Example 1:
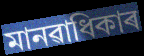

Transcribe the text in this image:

মানৱাধিকাৰ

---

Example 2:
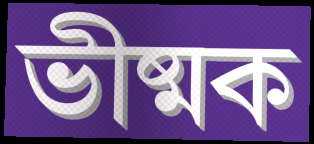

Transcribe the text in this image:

ভীষ্মক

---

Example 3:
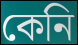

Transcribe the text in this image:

কেনি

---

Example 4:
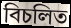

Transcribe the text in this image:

বিচলিত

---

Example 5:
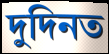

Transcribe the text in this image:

দুদিনত